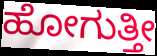
ಹೋಗುತ್ತೀ